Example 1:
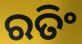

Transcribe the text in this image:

ରତିଂ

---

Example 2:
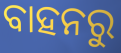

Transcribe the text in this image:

ବାହନରୁ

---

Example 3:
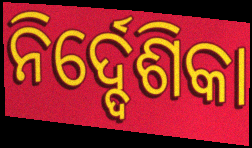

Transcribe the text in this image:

ନିର୍ଦ୍ଦେଶିକା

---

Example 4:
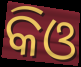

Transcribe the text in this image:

କିଓ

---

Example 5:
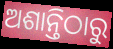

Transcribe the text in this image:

ଅଶାନ୍ତିଠାରୁ